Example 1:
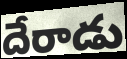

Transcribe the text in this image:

దేరాడు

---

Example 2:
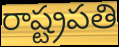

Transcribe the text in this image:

రాష్ట్రపతి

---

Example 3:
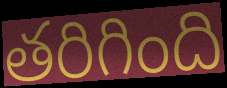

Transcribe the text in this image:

తరిగింది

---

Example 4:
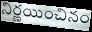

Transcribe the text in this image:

నిర్ణయించినం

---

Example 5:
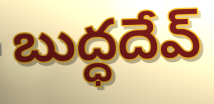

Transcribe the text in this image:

బుద్ధదేవ్